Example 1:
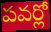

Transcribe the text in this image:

పవర్లో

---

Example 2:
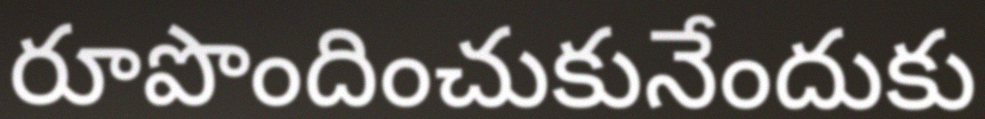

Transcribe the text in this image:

రూపొందించుకునేందుకు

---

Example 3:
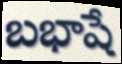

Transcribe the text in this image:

బభాషే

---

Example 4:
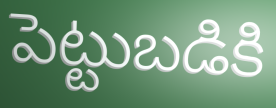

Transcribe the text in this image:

పెట్టుబడికి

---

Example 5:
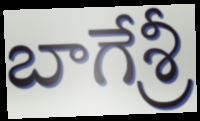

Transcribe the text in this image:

బాగేశ్రీ